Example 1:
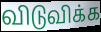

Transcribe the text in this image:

விடுவிக்க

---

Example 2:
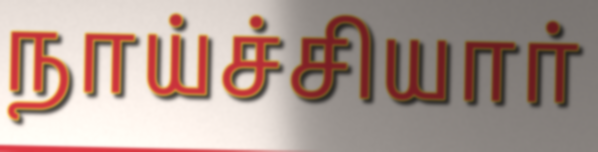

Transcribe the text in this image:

நாய்ச்சியார்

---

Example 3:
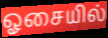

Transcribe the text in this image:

ஓசையில்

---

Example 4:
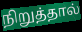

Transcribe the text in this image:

நிறுத்தால்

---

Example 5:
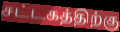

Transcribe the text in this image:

சட்டகத்திற்கு